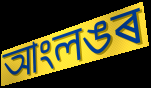
আংলঙৰ